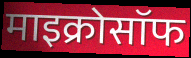
माइक्रोसॉफ